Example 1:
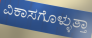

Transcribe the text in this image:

ವಿಕಾಸಗೊಳ್ಳುತ್ತಾ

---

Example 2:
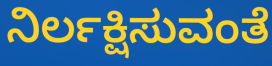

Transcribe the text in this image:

ನಿರ್ಲಕ್ಷಿಸುವಂತೆ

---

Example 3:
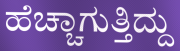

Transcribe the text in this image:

ಹೆಚ್ಚಾಗುತ್ತಿದ್ದು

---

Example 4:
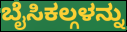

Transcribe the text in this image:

ಬೈಸಿಕಲ್ಗಳನ್ನು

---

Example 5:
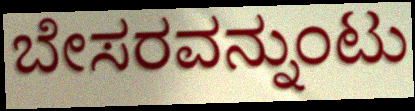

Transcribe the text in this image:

ಬೇಸರವನ್ನುಂಟು